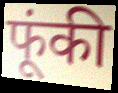
फूंकी